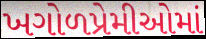
ખગોળપ્રેમીઓમાં